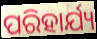
ପରିହାର୍ଯ୍ୟ